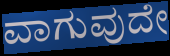
ವಾಗುವುದೇ